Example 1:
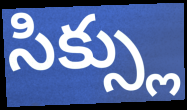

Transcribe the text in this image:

సిక్స్లు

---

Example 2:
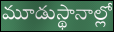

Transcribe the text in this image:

మూడుస్థానాల్లో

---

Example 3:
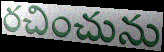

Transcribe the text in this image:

రచించును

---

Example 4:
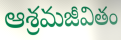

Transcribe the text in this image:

ఆశ్రమజీవితం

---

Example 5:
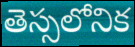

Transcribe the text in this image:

తెస్సలోనిక